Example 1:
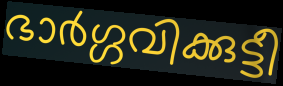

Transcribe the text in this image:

ഭാർഗ്ഗവിക്കുട്ടീ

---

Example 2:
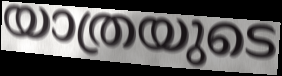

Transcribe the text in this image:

യാത്രയുടെ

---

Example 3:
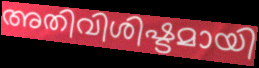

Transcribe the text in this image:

അതിവിശിഷ്ടമായി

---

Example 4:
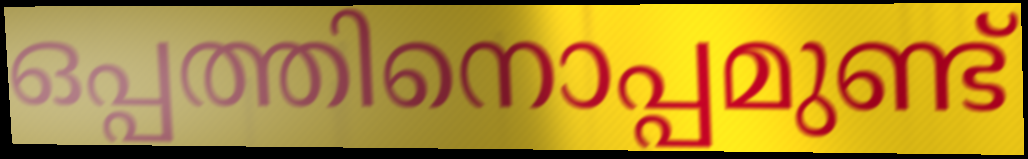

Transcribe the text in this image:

ഒപ്പത്തിനൊപ്പമുണ്ട്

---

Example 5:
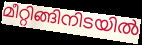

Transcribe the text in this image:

മീറ്റിങ്ങിനിടയിൽ